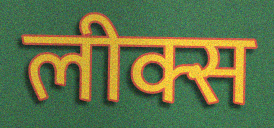
लीक्स